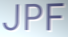
JPF